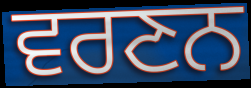
ਵਰਣਨ